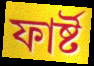
ফার্ষ্ট